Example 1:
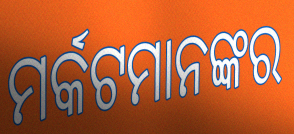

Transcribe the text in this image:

ମର୍କଟମାନଙ୍କର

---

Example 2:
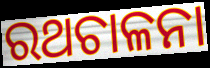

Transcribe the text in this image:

ରଥଚାଳନା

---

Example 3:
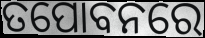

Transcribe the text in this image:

ତପୋବନରେ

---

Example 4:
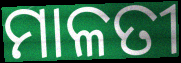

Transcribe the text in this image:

ମାଳତୀ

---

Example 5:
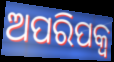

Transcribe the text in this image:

ଅପରିପକ୍ୱ